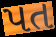
પત